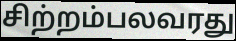
சிற்றம்பலவரது